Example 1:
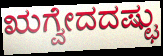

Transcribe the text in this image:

ಋಗ್ವೇದದಷ್ಟು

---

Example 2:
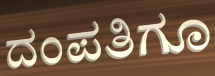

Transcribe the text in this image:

ದಂಪತಿಗೂ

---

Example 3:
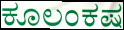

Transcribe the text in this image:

ಕೂಲಂಕಷ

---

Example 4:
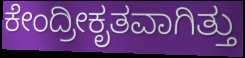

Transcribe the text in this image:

ಕೇಂದ್ರೀಕೃತವಾಗಿತ್ತು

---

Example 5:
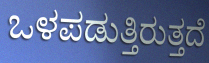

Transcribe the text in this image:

ಒಳಪಡುತ್ತಿರುತ್ತದೆ